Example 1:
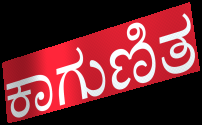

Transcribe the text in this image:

ಕಾಗುಣಿತ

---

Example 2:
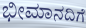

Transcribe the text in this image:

ಭೀಮಾನದಿಗೆ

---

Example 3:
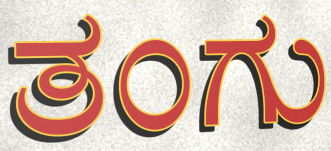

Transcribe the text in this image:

ತಂಗು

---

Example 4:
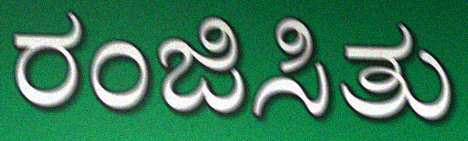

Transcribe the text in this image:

ರಂಜಿಸಿತು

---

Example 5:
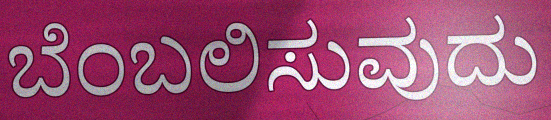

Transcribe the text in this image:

ಬೆಂಬಲಿಸುವುದು